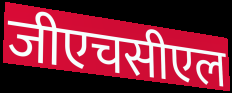
जीएचसीएल